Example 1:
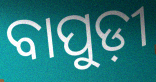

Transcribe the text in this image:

ବାପୁଡ଼ୀ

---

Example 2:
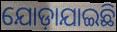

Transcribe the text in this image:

ଯୋଡ଼ାଯାଇଛି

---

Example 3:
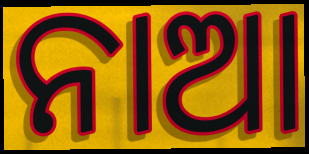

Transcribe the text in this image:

ନାଆ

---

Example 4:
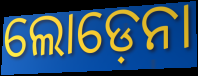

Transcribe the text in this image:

ଲୋଡ଼େନା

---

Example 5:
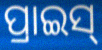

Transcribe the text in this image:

ପ୍ରାଇସ୍